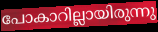
പോകാറില്ലായിരുന്നു